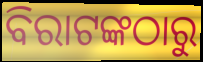
ବିରାଟଙ୍କଠାରୁ